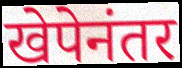
खेपेनंतर